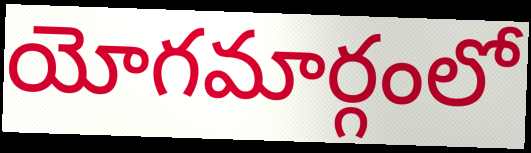
యోగమార్గంలో